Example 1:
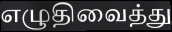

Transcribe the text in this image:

எழுதிவைத்து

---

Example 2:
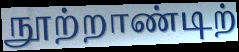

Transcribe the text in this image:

நூற்றாண்டிற்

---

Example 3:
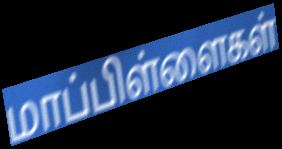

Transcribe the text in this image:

மாப்பிள்ளைகள்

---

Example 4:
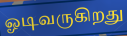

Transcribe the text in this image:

ஓடிவருகிறது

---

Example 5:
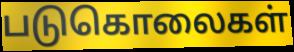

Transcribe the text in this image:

படுகொலைகள்